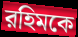
রহিমকে